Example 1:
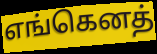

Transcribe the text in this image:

எங்கெனத்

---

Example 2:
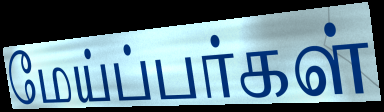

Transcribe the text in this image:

மேய்ப்பர்கள்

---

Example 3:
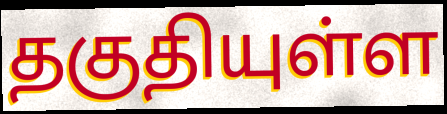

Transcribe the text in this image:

தகுதியுள்ள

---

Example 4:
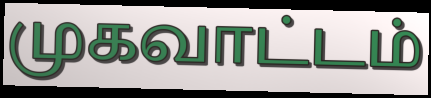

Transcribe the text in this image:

முகவாட்டம்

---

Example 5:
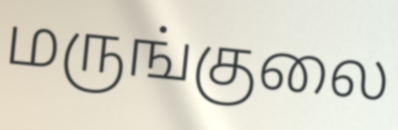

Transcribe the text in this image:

மருங்குலை